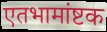
एतभामांष्टक